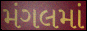
મંગલમાં